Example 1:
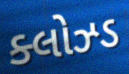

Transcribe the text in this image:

ક્લોઝ્ડ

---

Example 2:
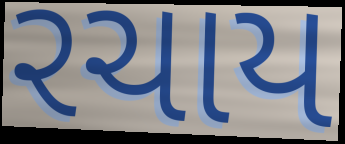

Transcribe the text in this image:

રચાય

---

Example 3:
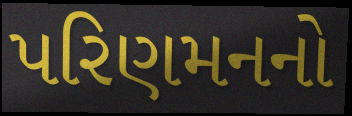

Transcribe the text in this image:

પરિણમનનો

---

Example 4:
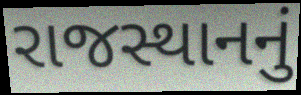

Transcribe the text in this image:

રાજસ્થાનનું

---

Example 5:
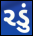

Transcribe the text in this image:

રડું